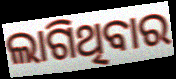
ଲାଗିଥିବାର